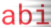
abi